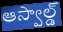
ఆస్వాల్డ్